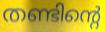
തണ്ടിന്റെ